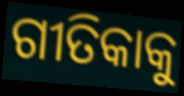
ଗୀତିକାକୁ